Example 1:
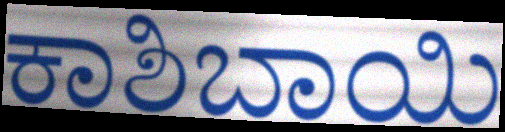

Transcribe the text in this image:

ಕಾಶಿಬಾಯಿ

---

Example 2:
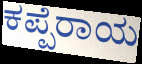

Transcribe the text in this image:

ಕಪ್ಪೆರಾಯ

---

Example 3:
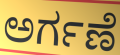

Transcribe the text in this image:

ಅರ್ಗಣೆ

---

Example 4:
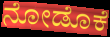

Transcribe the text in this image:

ನೋಡೊಕೆ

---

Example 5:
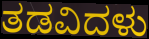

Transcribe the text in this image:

ತಡವಿದಳು